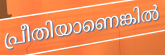
പ്രീതിയാണെങ്കിൽ